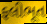
ફલીભૂત